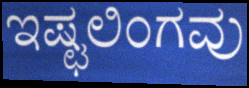
ಇಷ್ಟಲಿಂಗವು